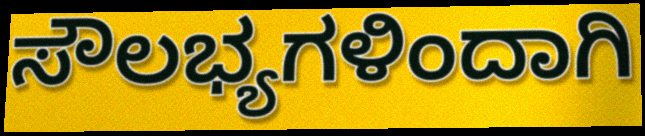
ಸೌಲಭ್ಯಗಳಿಂದಾಗಿ